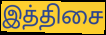
இத்திசை